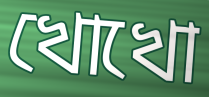
খোখো